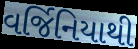
વર્જિનિયાથી